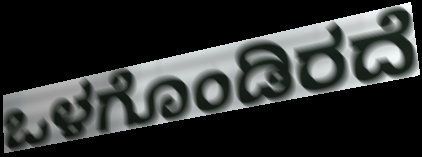
ಒಳಗೊಂಡಿರದೆ